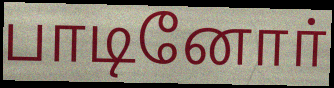
பாடினோர்